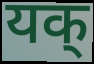
यक्